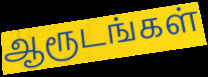
ஆரூடங்கள்